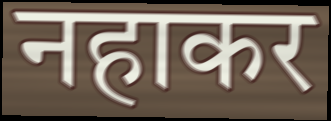
नहाकर